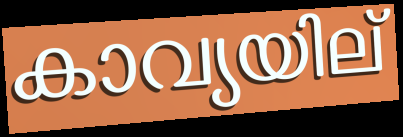
കാവ്യയില്